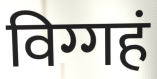
विग्गहं